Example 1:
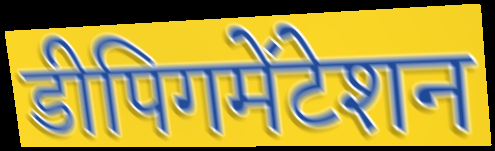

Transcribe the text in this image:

डीपिगमेंटेशन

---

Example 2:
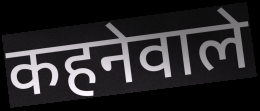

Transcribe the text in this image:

कहनेवाले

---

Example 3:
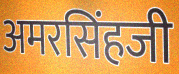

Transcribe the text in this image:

अमरसिंहजी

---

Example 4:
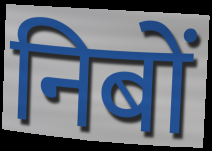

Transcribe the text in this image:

निबों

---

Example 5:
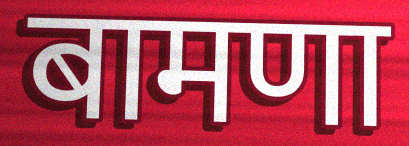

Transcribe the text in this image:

बामणा